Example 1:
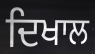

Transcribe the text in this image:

ਦਿਖਾਲ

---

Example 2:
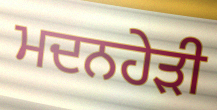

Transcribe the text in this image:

ਮਦਨਹੇੜੀ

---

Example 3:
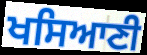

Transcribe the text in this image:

ਖਸਿਆਣੀ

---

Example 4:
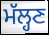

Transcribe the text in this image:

ਮੱਲ੍ਹਣ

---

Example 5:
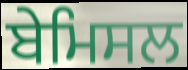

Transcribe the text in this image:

ਬੇਮਿਸਲ